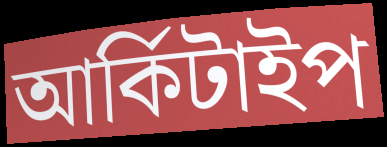
আৰ্কিটাইপ